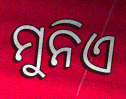
ମୁନିଏ